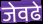
जेवढे